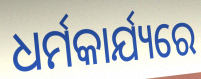
ଧର୍ମକାର୍ଯ୍ୟରେ